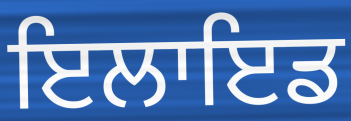
ਇਲਾਇਡ